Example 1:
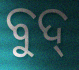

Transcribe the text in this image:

ବୁଦ୍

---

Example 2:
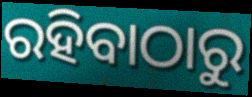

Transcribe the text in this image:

ରହିବାଠାରୁ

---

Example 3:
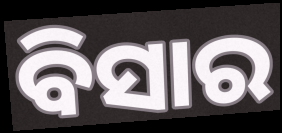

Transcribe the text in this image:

ବିସାର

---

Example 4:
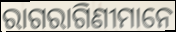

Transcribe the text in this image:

ରାଗରାଗିଣୀମାନେ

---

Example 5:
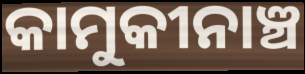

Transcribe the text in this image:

କାମୁକୀନାଞ୍ଚ